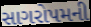
સાગરોપમની